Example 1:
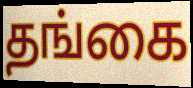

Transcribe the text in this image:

தங்கை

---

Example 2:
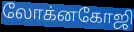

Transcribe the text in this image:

லோக்னகோஜி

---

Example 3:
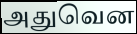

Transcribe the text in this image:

அதுவென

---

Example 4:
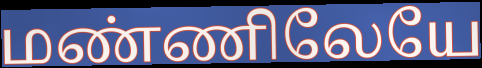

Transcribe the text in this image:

மண்ணிலேயே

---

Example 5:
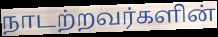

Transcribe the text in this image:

நாடற்றவர்களின்